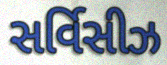
સર્વિસીઝ